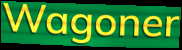
Wagoner